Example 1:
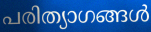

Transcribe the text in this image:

പരിത്യാഗങ്ങൾ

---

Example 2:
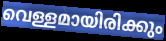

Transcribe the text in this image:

വെള്ളമായിരിക്കും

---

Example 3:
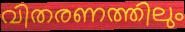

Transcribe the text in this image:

വിതരണത്തിലും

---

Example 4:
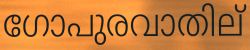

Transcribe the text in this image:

ഗോപുരവാതില്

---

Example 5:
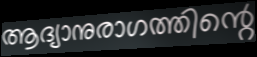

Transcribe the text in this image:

ആദ്യാനുരാഗത്തിന്റെ